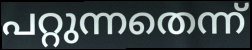
പറ്റുന്നതെന്ന്